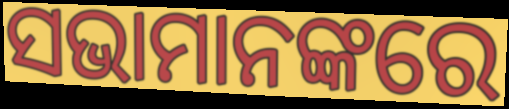
ସଭାମାନଙ୍କରେ